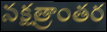
నక్షత్రాంతర